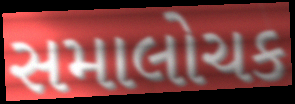
સમાલોચક